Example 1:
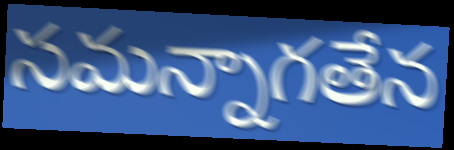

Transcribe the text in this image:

సమన్నాగతేన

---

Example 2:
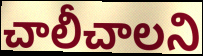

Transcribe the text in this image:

చాలీచాలని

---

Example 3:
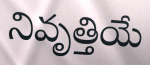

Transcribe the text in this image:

నివృత్తియే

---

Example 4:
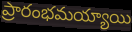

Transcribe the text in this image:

ప్రారంభమయ్యాయి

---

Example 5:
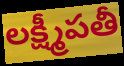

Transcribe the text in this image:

లక్ష్మీపతీ